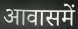
आवासमें